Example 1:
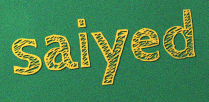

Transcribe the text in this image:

saiyed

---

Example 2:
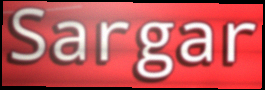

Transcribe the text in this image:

Sargar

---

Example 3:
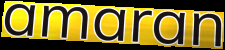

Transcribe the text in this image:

amaran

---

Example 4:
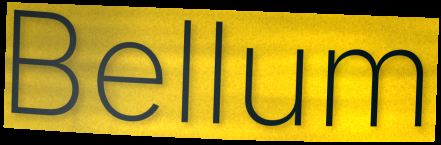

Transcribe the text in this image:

Bellum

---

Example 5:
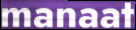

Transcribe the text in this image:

manaat